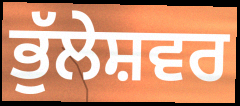
ਭੁੱਲੇਸ਼ਵਰ